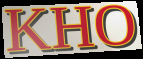
KHO